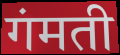
गंमती